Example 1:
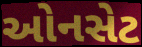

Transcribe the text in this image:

ઓનસેટ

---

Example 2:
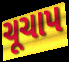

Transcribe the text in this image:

ચૂચાપ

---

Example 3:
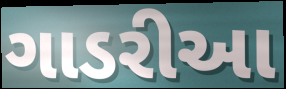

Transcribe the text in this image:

ગાડરીઆ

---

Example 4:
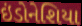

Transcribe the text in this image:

ઇંડોનેશિયા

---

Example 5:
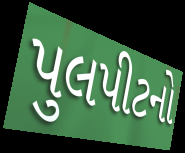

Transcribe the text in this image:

પુલપીટનો